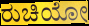
ರುಚಿಯೋ